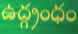
ఉద్గ్రంధం